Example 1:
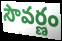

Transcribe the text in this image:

సౌవర్ణం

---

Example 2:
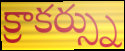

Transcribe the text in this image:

క్రాకర్స్ను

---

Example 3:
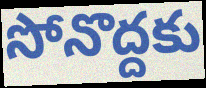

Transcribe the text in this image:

సోనొద్దకు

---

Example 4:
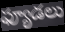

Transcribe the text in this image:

ఫ్యూడలు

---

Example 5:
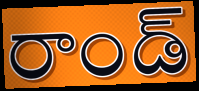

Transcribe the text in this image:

రాండ్